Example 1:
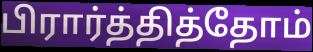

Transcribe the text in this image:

பிரார்த்தித்தோம்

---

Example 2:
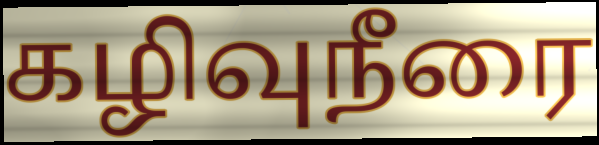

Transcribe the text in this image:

கழிவுநீரை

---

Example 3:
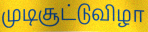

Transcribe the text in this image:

முடிசூட்டுவிழா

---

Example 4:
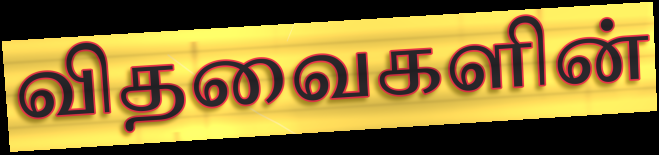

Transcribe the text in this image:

விதவைகளின்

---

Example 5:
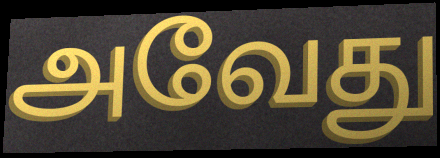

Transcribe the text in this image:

அவேது